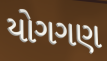
યોગગણ